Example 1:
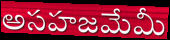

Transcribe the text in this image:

అసహజమేమీ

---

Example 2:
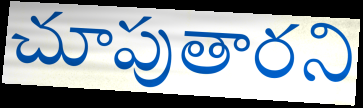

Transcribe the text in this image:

చూపుతారని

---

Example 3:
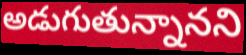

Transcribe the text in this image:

అడుగుతున్నానని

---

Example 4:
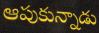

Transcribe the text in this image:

ఆపుకున్నాడు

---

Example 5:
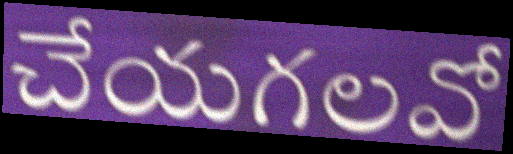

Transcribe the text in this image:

చేయగలవో